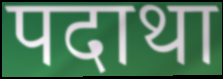
पदाथा